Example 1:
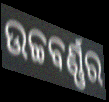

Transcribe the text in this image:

ଉଚ୍ଚବର୍ଣ୍ଣର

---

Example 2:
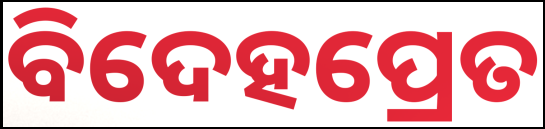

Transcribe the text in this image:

ବିଦେହପ୍ରେତ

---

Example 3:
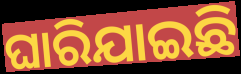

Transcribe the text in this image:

ଘାରିଯାଇଛି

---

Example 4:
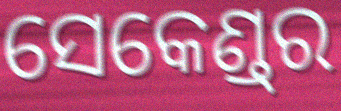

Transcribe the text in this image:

ସେକେଣ୍ଡ୍‌ର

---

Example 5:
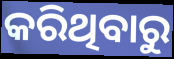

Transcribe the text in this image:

କରିଥିବାରୁ